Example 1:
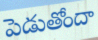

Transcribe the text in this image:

పెడుతోందా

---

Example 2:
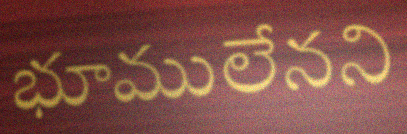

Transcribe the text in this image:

భూములేనని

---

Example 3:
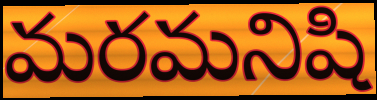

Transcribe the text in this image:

మరమనిషి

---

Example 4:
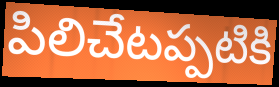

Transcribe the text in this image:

పిలిచేటప్పటికి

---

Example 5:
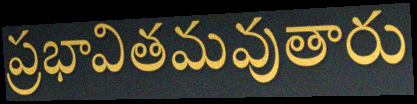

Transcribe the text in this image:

ప్రభావితమవుతారు